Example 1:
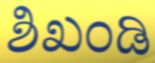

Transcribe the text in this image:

ಶಿಖಂಡಿ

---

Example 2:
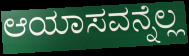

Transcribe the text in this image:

ಆಯಾಸವನ್ನೆಲ್ಲ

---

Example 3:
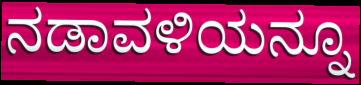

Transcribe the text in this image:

ನಡಾವಳಿಯನ್ನೂ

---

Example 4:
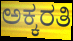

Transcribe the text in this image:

ಅಕ್ಕರತಿ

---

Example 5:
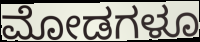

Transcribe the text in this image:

ಮೋಡಗಳೂ